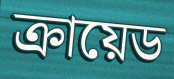
ক্রায়েড